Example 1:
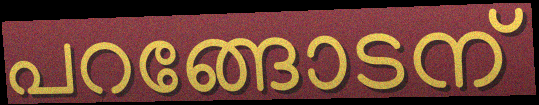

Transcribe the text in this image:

പറങ്ങോടന്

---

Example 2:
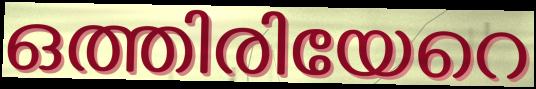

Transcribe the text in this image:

ഒത്തിരിയേറെ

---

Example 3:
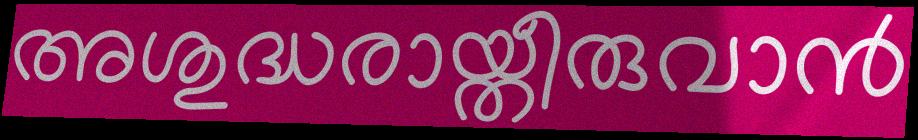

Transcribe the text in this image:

അശുദ്ധരായ്തീരുവാൻ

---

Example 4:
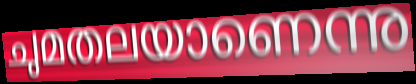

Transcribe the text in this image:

ചുമതലയാണെന്നു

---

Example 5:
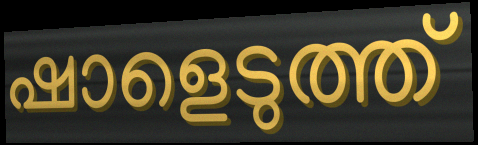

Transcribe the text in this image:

ഷാളെടുത്ത്